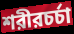
শরীরচর্চা